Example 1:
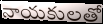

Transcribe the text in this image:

నాయకులతో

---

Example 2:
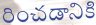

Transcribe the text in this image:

రించడానికి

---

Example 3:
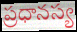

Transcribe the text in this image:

ప్రధానస్య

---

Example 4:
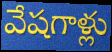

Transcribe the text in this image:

వేషగాళ్లు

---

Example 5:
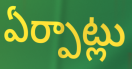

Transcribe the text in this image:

ఏర్పాట్లు